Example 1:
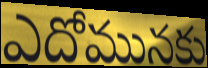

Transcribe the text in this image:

ఎదోమునకు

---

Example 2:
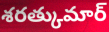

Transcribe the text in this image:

శరత్కుమార్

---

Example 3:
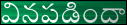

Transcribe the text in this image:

వినపడిందా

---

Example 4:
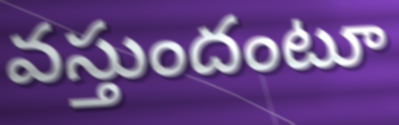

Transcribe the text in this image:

వస్తుందంటూ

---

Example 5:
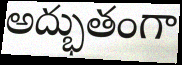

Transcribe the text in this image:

అద్భుతంగా